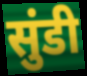
सुंडी